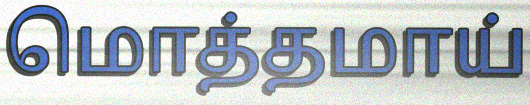
மொத்தமாய்